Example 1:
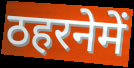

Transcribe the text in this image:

ठहरनेमें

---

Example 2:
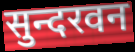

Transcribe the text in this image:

सुन्दरवन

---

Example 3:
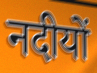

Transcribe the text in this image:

नदीयों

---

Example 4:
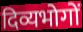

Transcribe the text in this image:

दिव्यभोगों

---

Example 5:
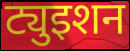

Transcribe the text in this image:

ट्युइशन